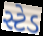
સ્ટેડ